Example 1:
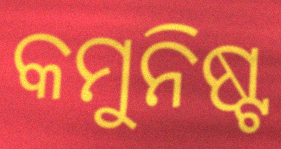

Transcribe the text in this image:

କମୁନିଷ୍ଟ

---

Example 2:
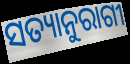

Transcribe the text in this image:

ସତ୍ୟାନୁରାଗୀ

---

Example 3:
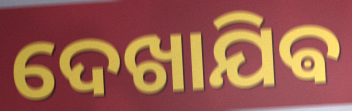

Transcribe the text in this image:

ଦେଖାଯିଵ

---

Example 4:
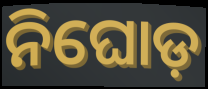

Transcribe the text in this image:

ନିଘୋଡ଼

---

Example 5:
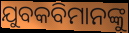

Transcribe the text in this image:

ଯୁବକବିମାନଙ୍କୁ